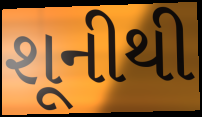
શૂનીથી